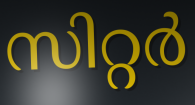
സിറ്റർ